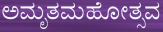
ಅಮೃತಮಹೋತ್ಸವ